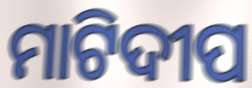
ମାଟିଦୀପ